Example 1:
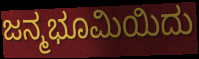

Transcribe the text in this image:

ಜನ್ಮಭೂಮಿಯಿದು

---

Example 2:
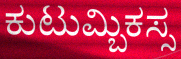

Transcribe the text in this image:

ಕುಟುಮ್ಬಿಕಸ್ಸ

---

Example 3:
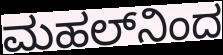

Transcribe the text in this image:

ಮಹಲ್‌ನಿಂದ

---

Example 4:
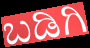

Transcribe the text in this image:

ಬಡಿಗಿ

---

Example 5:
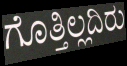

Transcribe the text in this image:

ಗೊತ್ತಿಲ್ಲದಿರು